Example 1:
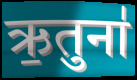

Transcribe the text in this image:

ऋ॒तुना॑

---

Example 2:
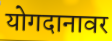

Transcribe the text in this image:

योगदानावर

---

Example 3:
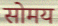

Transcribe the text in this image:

सोमय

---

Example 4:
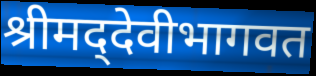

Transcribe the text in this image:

श्रीमद्‌देवीभागवत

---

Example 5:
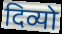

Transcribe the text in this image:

दिव्यो